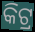
କିଟ୍ର